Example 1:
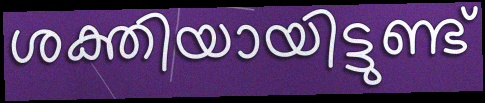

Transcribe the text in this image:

ശക്തിയായിട്ടുണ്ട്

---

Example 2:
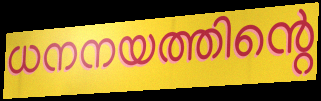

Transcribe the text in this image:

ധനനയത്തിന്റെ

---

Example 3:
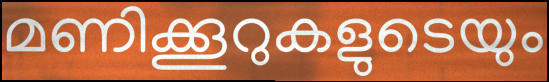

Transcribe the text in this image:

മണിക്കൂറുകളുടെയും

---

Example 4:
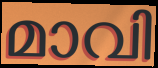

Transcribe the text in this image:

മാവി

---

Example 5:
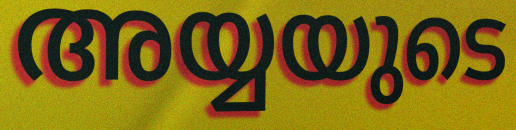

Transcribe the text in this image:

അയ്യയുടെ